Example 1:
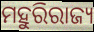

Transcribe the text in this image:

ମହୁରିରାଜ୍ୟ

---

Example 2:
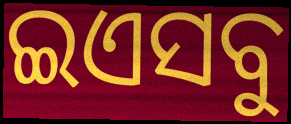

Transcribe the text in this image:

ଇଏସବୁ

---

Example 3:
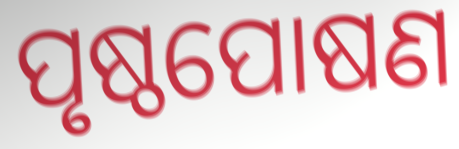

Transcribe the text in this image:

ପୃଷ୍ଠପୋଷଣ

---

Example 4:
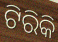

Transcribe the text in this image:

ଟିରିକି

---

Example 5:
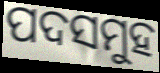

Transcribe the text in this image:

ପଦସମୁହ